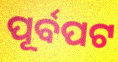
ପୂର୍ବପଟ